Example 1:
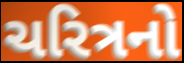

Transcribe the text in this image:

ચરિત્રનો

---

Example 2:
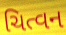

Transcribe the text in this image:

ચિત્વન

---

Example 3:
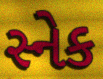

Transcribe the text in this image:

સ્નેક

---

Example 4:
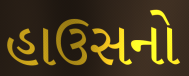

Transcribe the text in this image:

હાઉસનો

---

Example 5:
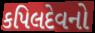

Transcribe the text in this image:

કપિલદેવનો